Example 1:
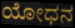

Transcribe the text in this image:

ಯೋಧನ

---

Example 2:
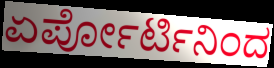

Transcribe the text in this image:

ಏರ್ಪೋರ್ಟಿನಿಂದ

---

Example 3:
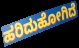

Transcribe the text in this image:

ಹರಿದುಹೋಗಿದೆ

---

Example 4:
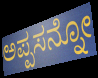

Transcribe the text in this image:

ಅಪ್ಪಸನ್ನೋ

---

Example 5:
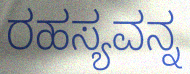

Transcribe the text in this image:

ರಹಸ್ಯವನ್ನ